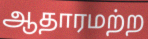
ஆதாரமற்ற